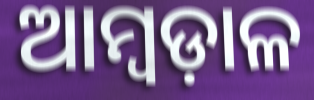
ଆମ୍ବଡ଼ାଳ